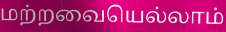
மற்றவையெல்லாம்